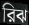
রিঝ